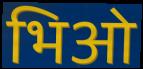
भिओ